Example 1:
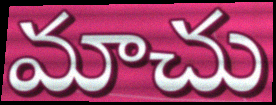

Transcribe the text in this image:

మాచు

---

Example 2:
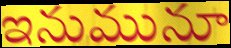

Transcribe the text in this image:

ఇనుమునూ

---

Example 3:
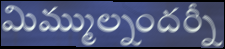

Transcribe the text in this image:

మిమ్ముల్నందర్నీ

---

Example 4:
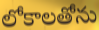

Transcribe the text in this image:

లోకాలతోను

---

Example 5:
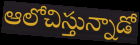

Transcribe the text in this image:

ఆలోచిస్తున్నాడో